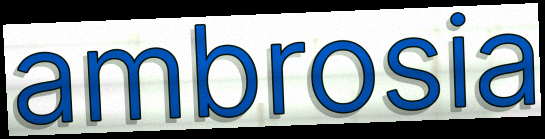
ambrosia